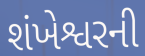
શંખેશ્વરની